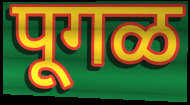
पूगळ